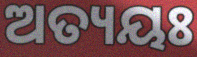
ଅତ୍ୟୟଃ